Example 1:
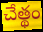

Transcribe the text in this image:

చేత్థం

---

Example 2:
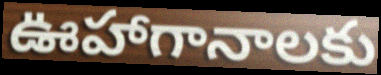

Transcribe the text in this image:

ఊహాగానాలకు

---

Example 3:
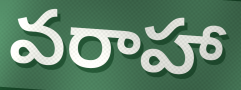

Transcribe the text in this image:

వరాహా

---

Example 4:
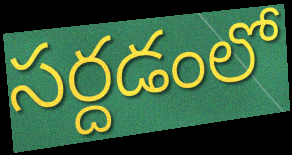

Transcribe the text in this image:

సర్దడంలో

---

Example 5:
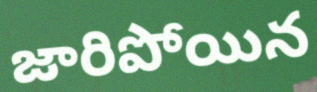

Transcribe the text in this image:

జారిపోయిన